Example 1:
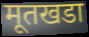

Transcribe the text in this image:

मूतखडा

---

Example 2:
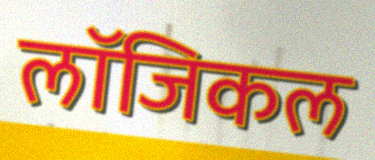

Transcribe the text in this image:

लॉजिकल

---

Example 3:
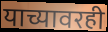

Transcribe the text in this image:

याच्यावरही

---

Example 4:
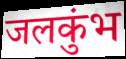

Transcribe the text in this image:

जलकुंभ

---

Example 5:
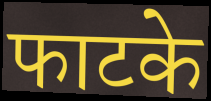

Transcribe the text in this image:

फाटके